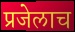
प्रजेलाच